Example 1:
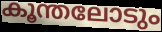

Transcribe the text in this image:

കൂന്തലോടും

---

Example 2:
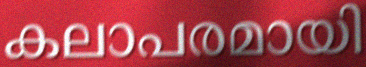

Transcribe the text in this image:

കലാപരമായി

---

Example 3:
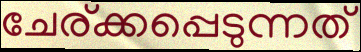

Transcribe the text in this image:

ചേര്ക്കപ്പെടുന്നത്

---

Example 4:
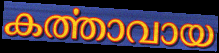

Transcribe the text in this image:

കൎത്താവായ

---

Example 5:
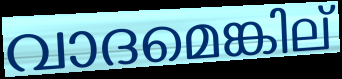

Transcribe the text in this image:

വാദമെങ്കില്